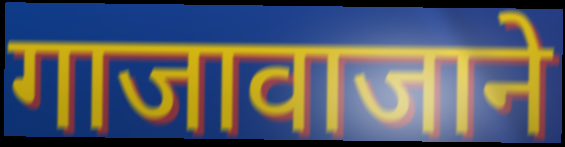
गाजावाजाने